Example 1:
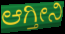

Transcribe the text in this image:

ಆಗ್ತೀನಿ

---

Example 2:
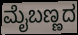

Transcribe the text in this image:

ಮೈಬಣ್ಣದ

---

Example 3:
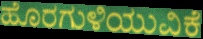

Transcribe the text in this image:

ಹೊರಗುಳಿಯುವಿಕೆ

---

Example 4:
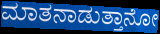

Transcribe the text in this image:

ಮಾತನಾಡುತ್ತಾನೋ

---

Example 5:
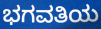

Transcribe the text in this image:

ಭಗವತಿಯ